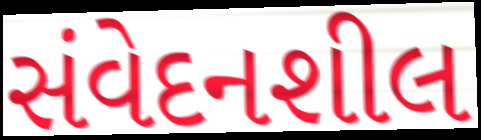
સંવેદનશીલ